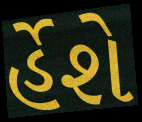
ર્હેશે